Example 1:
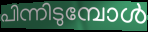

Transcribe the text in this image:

പിന്നിടുമ്പോൾ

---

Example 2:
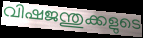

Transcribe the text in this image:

വിഷജന്തുക്കളുടെ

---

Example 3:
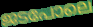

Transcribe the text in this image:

ജടപോലെ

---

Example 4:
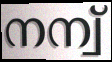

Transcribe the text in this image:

നന്വ്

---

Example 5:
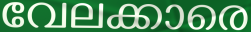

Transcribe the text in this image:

വേലക്കാരെ